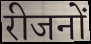
रीजनों